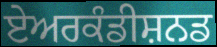
ਏਅਰਕੰਡੀਸ਼ਨਡ